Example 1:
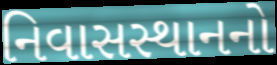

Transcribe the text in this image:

નિવાસસ્થાનનો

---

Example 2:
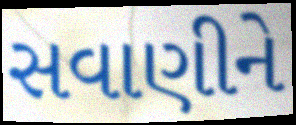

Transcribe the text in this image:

સવાણીને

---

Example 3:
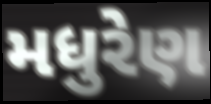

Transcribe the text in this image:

મધુરેણ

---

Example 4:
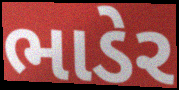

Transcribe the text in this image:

ભાડેર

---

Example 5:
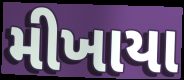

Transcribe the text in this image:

મીખાયા